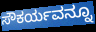
ಸೌಕರ್ಯವನ್ನೂ